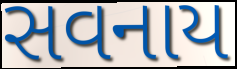
સવનાય